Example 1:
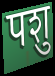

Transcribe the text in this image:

पशु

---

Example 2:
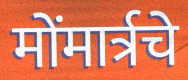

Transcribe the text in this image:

मोंमार्त्रचे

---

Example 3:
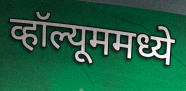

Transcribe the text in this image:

व्हॉल्यूममध्ये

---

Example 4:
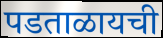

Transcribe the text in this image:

पडताळायची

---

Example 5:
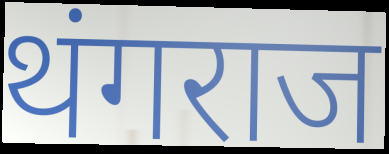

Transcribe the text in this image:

थंगराज